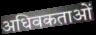
अधिवकताओं